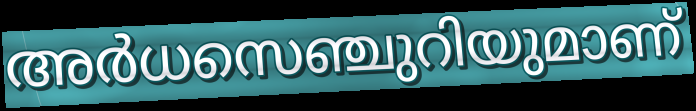
അർധസെഞ്ചുറിയുമാണ്